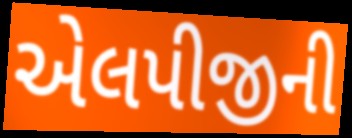
એલપીજીની